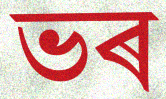
ভৰ